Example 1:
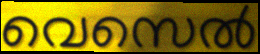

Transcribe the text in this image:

വെസെൽ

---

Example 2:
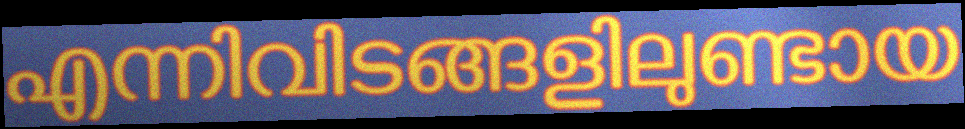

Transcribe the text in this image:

എന്നിവിടങ്ങളിലുണ്ടായ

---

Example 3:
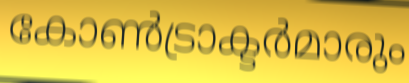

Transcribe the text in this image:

കോൺട്രാക്ടർമാരും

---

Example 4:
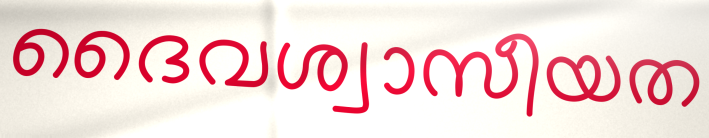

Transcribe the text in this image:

ദൈവശ്വാസീയത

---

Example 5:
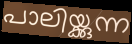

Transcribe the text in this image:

പാലിയ്ക്കുന്ന